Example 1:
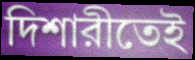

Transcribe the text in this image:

দিশারীতেই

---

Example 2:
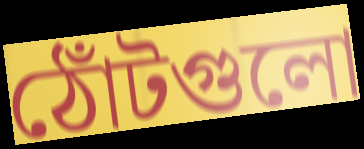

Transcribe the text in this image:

ঠোঁটগুলো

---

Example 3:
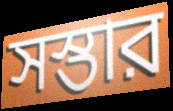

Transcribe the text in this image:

সস্তার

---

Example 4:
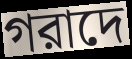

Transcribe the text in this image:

গরাদে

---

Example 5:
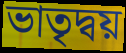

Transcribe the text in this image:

ভাতৃদ্বয়